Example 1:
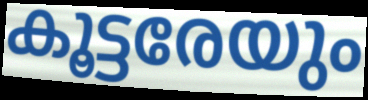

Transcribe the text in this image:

കൂട്ടരേയും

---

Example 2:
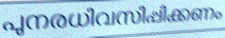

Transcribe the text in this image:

പുനരധിവസിപ്പിക്കണം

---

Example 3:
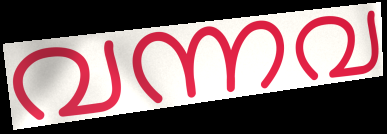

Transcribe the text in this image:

വന്നവ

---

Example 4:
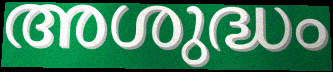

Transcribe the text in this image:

അശുദ്ധം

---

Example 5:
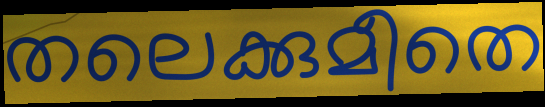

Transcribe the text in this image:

തലെക്കുമീതെ